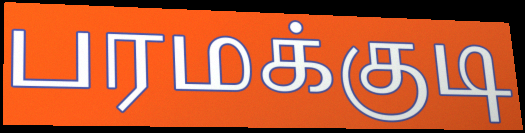
பரமக்குடி